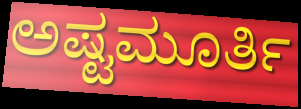
ಅಷ್ಟಮೂರ್ತಿ